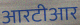
आरटीआर